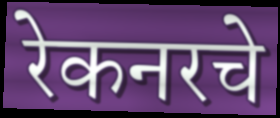
रेकनरचे